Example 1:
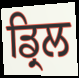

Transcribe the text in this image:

ਡ੍ਰਿਲ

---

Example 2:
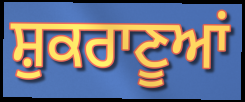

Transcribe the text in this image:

ਸ਼ੁਕਰਾਣੂਆਂ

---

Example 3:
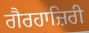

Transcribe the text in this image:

ਗੈਰਹਾਜ਼ਿਰੀ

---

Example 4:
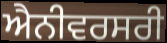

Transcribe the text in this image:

ਐਨੀਵਰਸਰੀ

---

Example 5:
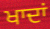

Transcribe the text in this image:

ਖਾਦਾਂ